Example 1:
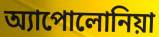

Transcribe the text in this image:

অ্যাপোলোনিয়া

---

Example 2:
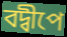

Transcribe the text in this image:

বদ্বীপে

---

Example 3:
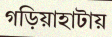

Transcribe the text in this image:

গড়িয়াহাটায়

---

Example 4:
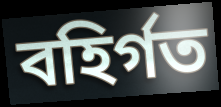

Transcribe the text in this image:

বহির্গত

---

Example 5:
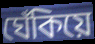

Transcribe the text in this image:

ঘেঁকিয়ে